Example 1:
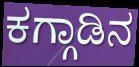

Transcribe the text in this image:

ಕಗ್ಗಾಡಿನ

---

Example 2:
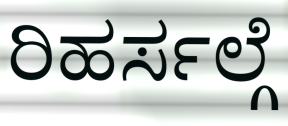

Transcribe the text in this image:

ರಿಹರ್ಸಲ್ಗೆ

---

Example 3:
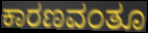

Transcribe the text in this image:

ಕಾರಣವಂತೂ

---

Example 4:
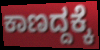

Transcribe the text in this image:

ಕಾಣದ್ದಕ್ಕೆ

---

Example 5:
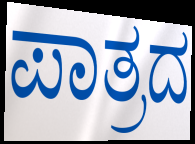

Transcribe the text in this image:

ಪಾತ್ರದ